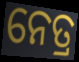
ନେତ୍ର